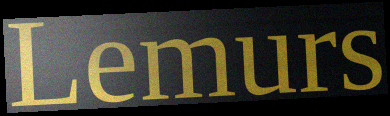
Lemurs